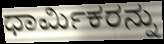
ಧಾರ್ಮಿಕರನ್ನು